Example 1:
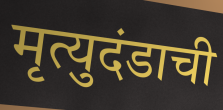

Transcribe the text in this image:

मृत्युदंडाची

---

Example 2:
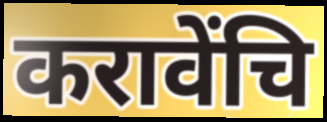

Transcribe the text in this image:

करावेंचि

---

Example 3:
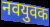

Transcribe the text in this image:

नवयुवक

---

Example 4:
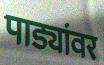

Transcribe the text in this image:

पाड्यांवर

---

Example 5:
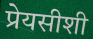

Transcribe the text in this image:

प्रेयसीशी